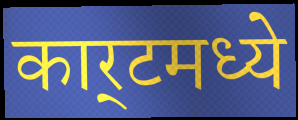
कार्टमध्ये